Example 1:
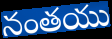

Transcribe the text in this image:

నంతయు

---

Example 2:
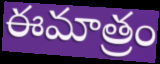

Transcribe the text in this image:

ఈమాత్రం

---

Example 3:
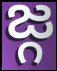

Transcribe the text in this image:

జ్గ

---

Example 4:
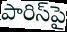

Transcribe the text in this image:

పారిస్‌పై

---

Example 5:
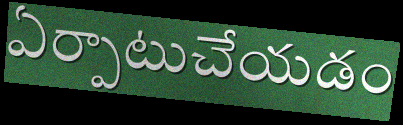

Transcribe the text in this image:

ఏర్పాటుచేయడం